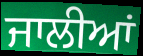
ਜਾਲੀਆਂ